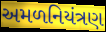
અમળનિયંત્રણ